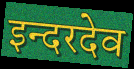
इन्दरदेव